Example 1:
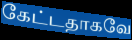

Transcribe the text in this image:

கேட்டதாகவே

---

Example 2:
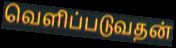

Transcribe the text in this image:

வெளிப்படுவதன்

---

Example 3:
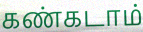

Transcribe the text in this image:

கண்கடாம்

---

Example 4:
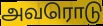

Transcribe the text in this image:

அவரொடு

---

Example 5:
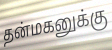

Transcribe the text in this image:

தன்மகனுக்கு